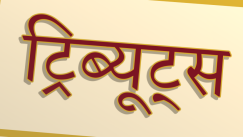
ट्रिब्यूट्स